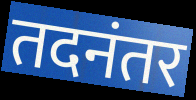
तदनंतर